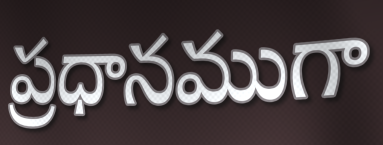
ప్రధానముగా